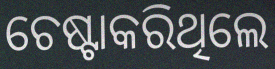
ଚେଷ୍ଟାକରିଥିଲେ